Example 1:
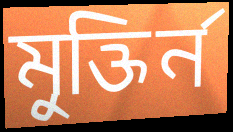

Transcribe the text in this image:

মুক্তির্ন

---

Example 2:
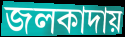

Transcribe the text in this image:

জলকাদায়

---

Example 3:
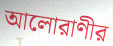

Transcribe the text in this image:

আলোরাণীর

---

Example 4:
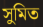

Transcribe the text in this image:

সুমিত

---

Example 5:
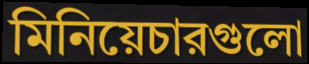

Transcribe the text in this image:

মিনিয়েচারগুলো